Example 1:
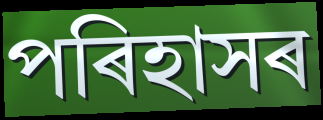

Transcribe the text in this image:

পৰিহাসৰ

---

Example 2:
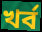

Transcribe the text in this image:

খৰ্ব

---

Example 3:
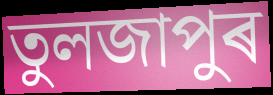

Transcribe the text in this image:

তুলজাপুৰ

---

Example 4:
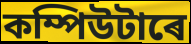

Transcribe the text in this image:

কম্পিউটাৰে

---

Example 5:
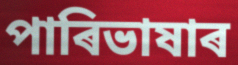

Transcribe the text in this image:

পাৰিভাষাৰ